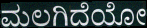
ಮಲಗಿದೆಯೋ